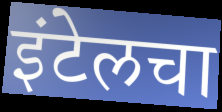
इंटेलचा